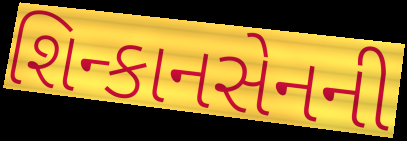
શિન્કાનસેનની